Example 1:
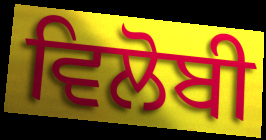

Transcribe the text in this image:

ਵਿਲੋਬੀ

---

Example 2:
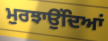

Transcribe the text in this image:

ਮੁਰਝਾਉਂਦਿਆਂ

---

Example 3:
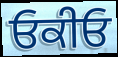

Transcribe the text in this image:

ਓਕੀਓ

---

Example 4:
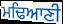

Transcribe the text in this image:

ਮਢਿਆਣੀ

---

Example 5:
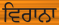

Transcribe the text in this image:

ਵਿਰਾਨਾ